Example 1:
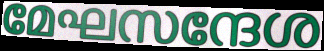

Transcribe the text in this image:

മേഘസന്ദേശ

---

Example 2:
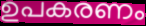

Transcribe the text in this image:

ഉപകരണം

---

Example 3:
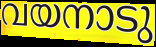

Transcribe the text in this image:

വയനാടു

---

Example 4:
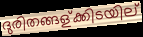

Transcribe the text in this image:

ദുരിതങ്ങള്ക്കിടയില്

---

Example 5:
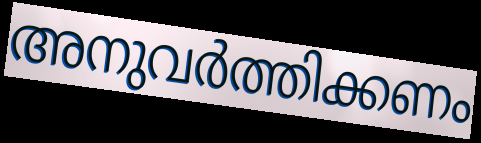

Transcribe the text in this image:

അനുവർത്തിക്കണം